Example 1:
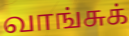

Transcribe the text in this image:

வாங்சுக்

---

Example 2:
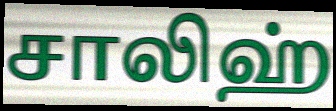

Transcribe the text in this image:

சாலிஹ்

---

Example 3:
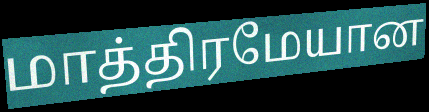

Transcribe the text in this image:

மாத்திரமேயான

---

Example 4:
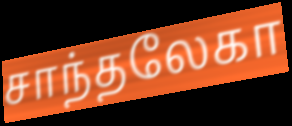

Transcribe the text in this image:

சாந்தலேகா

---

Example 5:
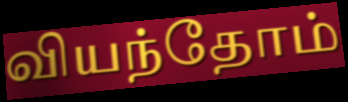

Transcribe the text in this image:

வியந்தோம்